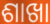
ଶାଖା